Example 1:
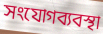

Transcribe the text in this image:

সংযোগব্যবস্থা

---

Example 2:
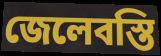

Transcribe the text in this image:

জেলেবস্তি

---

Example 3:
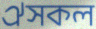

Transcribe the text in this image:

ঐসকল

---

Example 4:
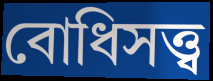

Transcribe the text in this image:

বোধিসত্ত্ব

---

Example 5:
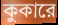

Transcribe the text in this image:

কুকারে